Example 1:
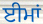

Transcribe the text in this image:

ਈਮਾਂ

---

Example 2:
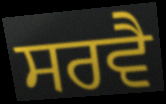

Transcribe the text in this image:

ਸਰਵੈ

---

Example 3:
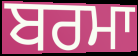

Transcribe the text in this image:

ਬਰਮਾ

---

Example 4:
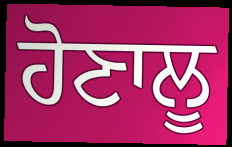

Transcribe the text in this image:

ਹੋਣਾਲੂ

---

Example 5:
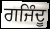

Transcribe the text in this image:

ਗਜਿੰਦੂ